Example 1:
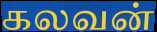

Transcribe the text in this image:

கலவன்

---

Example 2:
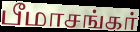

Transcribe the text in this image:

பீமாசங்கர்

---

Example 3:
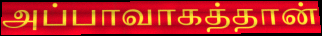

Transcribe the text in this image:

அப்பாவாகத்தான்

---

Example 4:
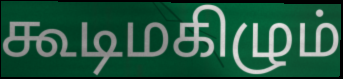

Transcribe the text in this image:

கூடிமகிழும்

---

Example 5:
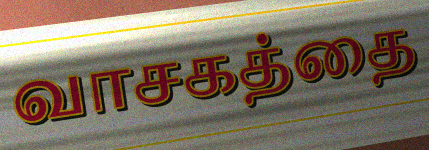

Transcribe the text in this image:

வாசகத்தை